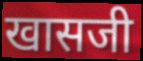
खासजी